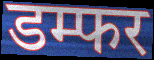
डम्फर